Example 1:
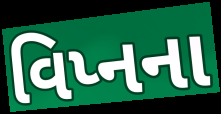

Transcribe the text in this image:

વિપ્નના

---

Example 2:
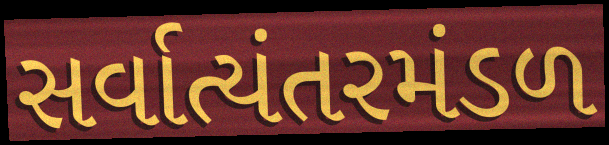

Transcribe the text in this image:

સર્વાત્યંતરમંડળ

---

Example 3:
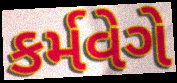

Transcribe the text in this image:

કર્મવેગે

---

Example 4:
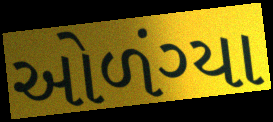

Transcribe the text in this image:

ઓળંગ્યા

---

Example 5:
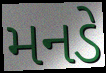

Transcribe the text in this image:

મનડે